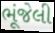
ભૂંજેલી